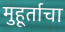
मुहूर्ताचा